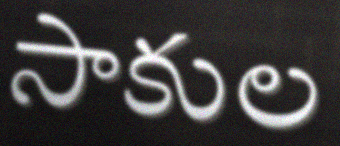
సాకుల